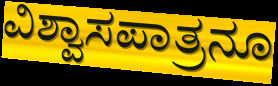
ವಿಶ್ವಾಸಪಾತ್ರನೂ